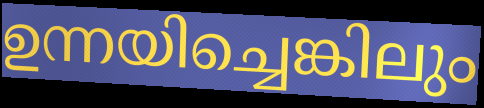
ഉന്നയിച്ചെങ്കിലും